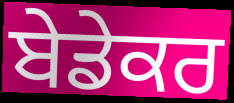
ਬੇਡੇਕਰ